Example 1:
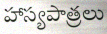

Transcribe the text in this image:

హాస్యపాత్రలు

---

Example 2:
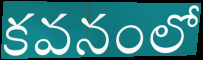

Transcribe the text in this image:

కవనంలో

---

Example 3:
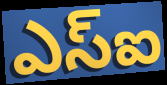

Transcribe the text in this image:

ఎస్ఐ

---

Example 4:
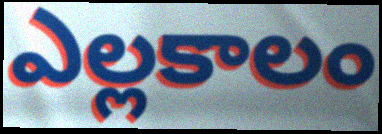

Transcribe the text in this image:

ఎల్లకాలం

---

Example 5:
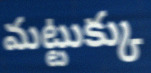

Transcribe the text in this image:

మట్టుక్కు